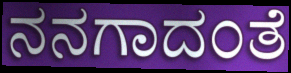
ನನಗಾದಂತೆ